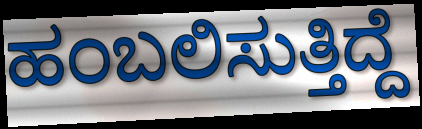
ಹಂಬಲಿಸುತ್ತಿದ್ದೆ